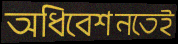
অধিবেশনতেই